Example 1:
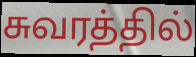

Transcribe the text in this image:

சுவரத்தில்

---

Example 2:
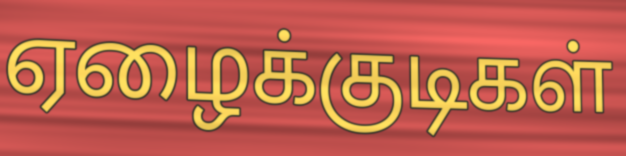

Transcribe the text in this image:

ஏழைக்குடிகள்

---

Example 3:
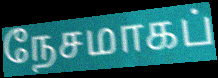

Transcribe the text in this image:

நேசமாகப்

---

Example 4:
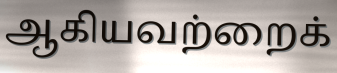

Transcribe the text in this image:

ஆகியவற்றைக்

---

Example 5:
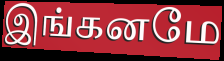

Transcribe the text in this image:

இங்கனமே